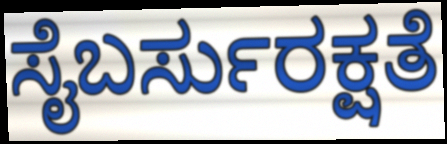
ಸೈಬರ್ಸುರಕ್ಷತೆ